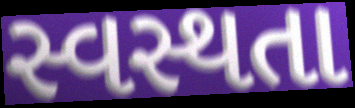
સ્વસ્થતા